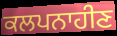
ਕਲਪਨਾਹੀਣ